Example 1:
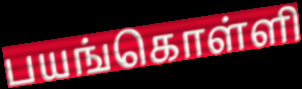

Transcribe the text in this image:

பயங்கொள்ளி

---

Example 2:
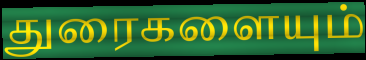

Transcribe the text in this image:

துரைகளையும்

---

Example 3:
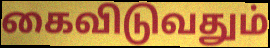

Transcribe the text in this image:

கைவிடுவதும்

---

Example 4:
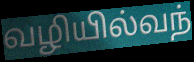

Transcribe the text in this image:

வழியில்வந்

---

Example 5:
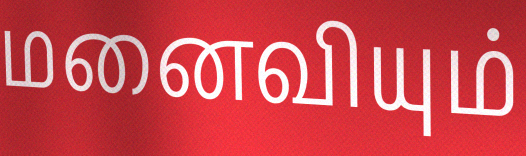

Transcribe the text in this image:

மனைவியும்